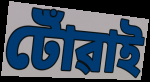
টোঁৱাই